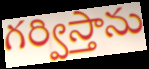
గర్విస్తాను